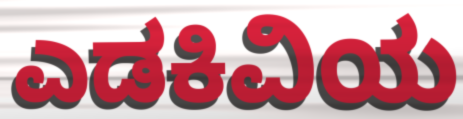
ಎಡಕಿವಿಯ